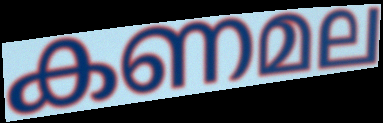
കണമല